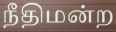
நீதிமன்ற